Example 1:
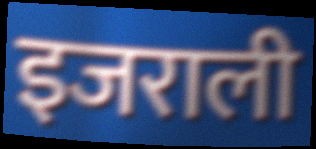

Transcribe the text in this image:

इजराली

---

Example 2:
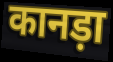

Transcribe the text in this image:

कानड़ा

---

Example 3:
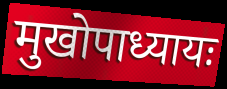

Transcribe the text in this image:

मुखोपाध्यायः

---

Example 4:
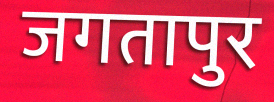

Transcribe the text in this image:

जगतापुर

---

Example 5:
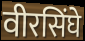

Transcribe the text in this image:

वीरसिंघे